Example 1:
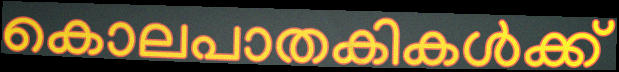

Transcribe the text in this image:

കൊലപാതകികൾക്ക്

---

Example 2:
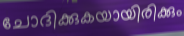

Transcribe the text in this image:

ചോദിക്കുകയായിരിക്കും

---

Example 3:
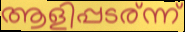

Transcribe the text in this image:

ആളിപ്പടര്ന്ന്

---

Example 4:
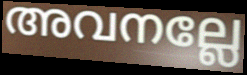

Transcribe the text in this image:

അവനല്ലേ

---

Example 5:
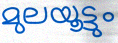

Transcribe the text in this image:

മുലയൂട്ടും